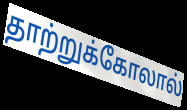
தாற்றுக்கோலால்